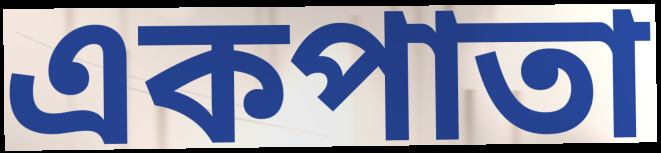
একপাতা